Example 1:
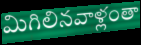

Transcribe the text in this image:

మిగిలినవాళ్లంతా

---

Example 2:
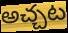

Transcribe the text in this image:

అచ్చట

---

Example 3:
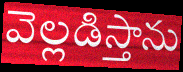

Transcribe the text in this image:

వెల్లడిస్తాను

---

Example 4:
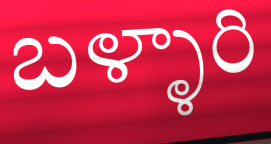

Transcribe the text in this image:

బళ్ళారి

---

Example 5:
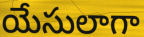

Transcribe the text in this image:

యేసులాగా